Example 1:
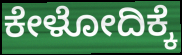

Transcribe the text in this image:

ಕೇಳೋದಿಕ್ಕೆ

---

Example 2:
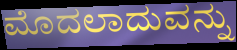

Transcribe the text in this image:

ಮೊದಲಾದುವನ್ನು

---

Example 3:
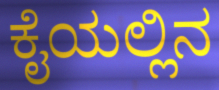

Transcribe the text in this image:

ಕೈಯಲ್ಲಿನ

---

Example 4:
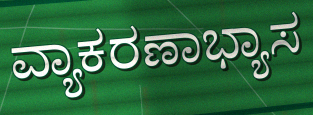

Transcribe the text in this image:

ವ್ಯಾಕರಣಾಭ್ಯಾಸ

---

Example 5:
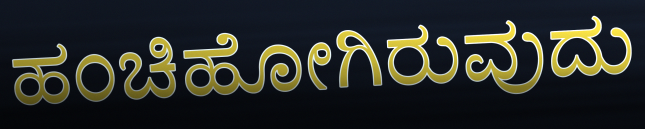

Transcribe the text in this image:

ಹಂಚಿಹೋಗಿರುವುದು